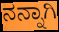
ನನ್ನಾಗಿ